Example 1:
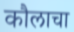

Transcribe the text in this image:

कौलाचा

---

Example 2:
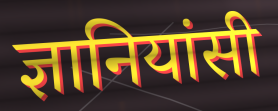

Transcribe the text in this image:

ज्ञानियांसी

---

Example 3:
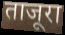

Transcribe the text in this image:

ताजूरा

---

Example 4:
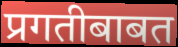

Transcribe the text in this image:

प्रगतीबाबत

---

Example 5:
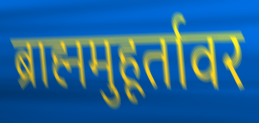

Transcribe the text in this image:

ब्राह्ममुहूर्तावर